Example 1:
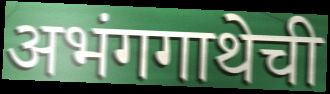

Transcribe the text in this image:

अभंगगाथेची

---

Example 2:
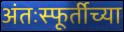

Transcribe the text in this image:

अंतःस्फूर्तीच्या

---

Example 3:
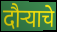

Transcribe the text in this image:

दौर्‍याचे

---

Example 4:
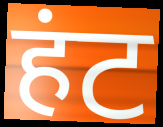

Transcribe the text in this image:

हंट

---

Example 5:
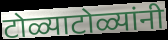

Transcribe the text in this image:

टोळ्याटोळ्यांनी